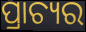
ପ୍ରାଚ୍ୟର